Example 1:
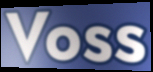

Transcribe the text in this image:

Voss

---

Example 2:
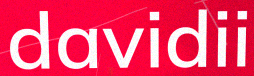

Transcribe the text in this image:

davidii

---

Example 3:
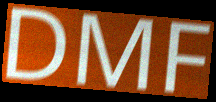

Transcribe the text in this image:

DMF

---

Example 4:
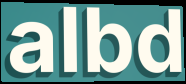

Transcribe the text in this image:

albd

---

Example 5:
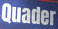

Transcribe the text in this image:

Quader